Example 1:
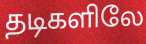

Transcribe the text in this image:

தடிகளிலே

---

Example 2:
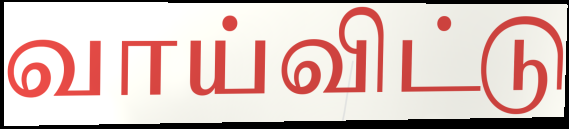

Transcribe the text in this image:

வாய்விட்டு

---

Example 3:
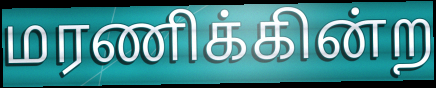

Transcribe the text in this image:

மரணிக்கின்ற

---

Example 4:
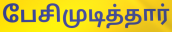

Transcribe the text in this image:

பேசிமுடித்தார்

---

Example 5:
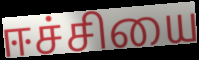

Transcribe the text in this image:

ஈச்சியை